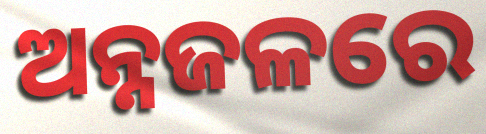
ଅନ୍ନଜଳରେ